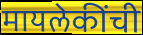
मायलेकींची